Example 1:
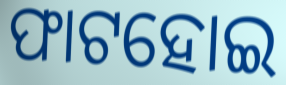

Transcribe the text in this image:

ଫାଟହୋଇ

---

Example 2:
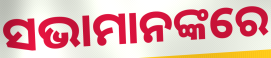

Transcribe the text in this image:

ସଭାମାନଙ୍କରେ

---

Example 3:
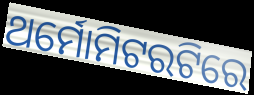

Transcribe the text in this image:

ଥର୍ମୋମିଟରଟିରେ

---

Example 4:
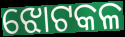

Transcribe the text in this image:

ଝୋଟକଳ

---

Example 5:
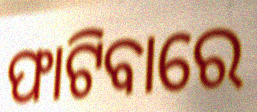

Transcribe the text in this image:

ଫାଟିବାରେ